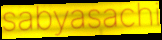
sabyasachi